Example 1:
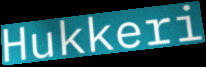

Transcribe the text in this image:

Hukkeri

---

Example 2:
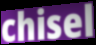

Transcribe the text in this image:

chisel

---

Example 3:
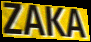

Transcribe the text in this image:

ZAKA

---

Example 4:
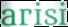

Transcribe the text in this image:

arisi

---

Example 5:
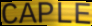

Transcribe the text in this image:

CAPLE